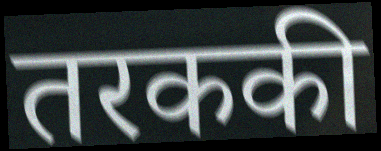
तरककी